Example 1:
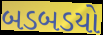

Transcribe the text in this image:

બડબડયો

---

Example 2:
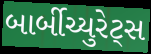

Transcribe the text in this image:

બાર્બીચ્યુરેટ્સ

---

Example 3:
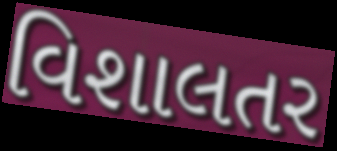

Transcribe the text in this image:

વિશાલતર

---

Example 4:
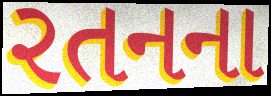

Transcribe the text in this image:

રતનના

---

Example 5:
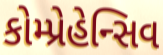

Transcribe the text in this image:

કોમ્પ્રેહેન્સિવ